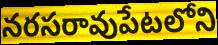
నరసరావుపేటలోని